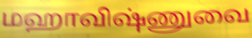
மஹாவிஷ்ணுவை